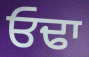
ਓਢਾ